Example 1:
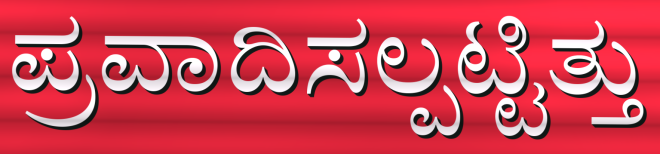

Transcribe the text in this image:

ಪ್ರವಾದಿಸಲ್ಪಟ್ಟಿತ್ತು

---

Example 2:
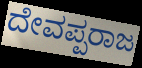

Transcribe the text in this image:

ದೇವಪ್ಪರಾಜ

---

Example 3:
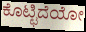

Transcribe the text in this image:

ಕೊಟ್ಟಿದೆಯೋ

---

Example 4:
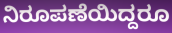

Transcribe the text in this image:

ನಿರೂಪಣೆಯಿದ್ದರೂ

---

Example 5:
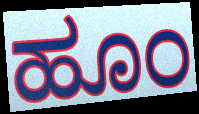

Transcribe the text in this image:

ಹೂಂ